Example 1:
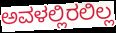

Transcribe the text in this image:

ಅವಳಲ್ಲಿರಲಿಲ್ಲ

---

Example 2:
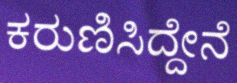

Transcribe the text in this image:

ಕರುಣಿಸಿದ್ದೇನೆ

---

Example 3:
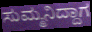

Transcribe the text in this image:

ಸುಮ್ಮನಿದ್ದಾಗ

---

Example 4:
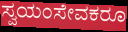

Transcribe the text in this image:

ಸ್ವಯಂಸೇವಕರೂ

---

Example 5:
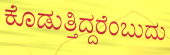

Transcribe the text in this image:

ಕೊಡುತ್ತಿದ್ದರೆಂಬುದು